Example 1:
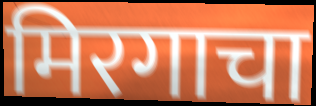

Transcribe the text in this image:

मिरगाचा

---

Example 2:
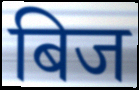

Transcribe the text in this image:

बिज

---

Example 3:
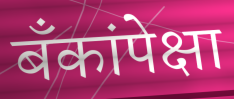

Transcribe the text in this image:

बँकांपेक्षा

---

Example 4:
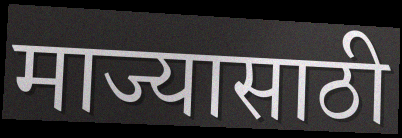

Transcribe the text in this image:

माज्यासाठी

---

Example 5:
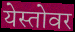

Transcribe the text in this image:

येस्तोवर